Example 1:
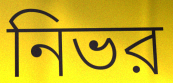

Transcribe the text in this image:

নিভর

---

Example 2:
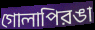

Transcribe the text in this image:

গোলাপিরঙা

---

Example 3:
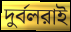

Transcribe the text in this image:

দুর্বলরাই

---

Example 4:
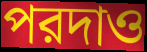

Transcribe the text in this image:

পরদাও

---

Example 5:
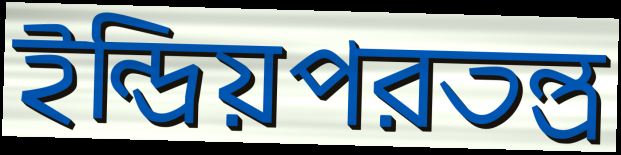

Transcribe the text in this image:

ইন্দ্রিয়পরতন্ত্র